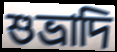
শুভ্রাদি